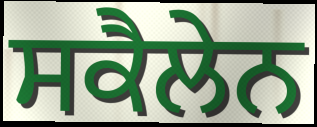
ਸਕੈਲੇਨ